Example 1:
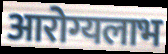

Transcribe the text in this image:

आरोग्यलाभ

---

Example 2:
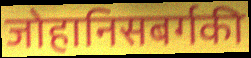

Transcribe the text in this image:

जोहानिसबर्गकी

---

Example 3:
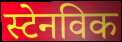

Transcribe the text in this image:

स्टेनविक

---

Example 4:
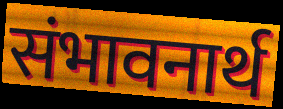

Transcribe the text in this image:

संभावनार्थ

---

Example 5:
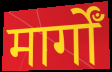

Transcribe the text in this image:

मार्गोँ